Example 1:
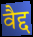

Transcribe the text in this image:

वैद्द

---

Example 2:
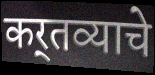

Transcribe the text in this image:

कर्तव्याचे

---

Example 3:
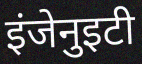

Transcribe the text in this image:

इंजेनुइटी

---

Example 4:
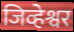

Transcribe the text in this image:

जिव्हेश्वर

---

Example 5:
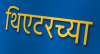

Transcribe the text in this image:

थिएटरच्या